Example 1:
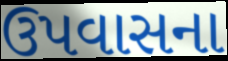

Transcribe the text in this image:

ઉપવાસના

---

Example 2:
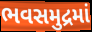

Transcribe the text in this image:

ભવસમુદ્રમાં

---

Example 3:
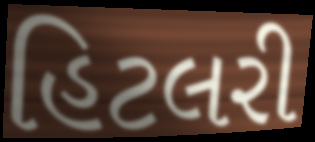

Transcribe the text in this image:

હિટલરી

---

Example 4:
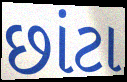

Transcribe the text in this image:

છાંટા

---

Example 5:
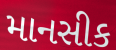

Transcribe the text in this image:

માનસીક